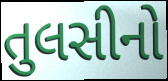
તુલસીનો